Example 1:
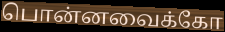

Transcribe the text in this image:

பொன்னவைக்கோ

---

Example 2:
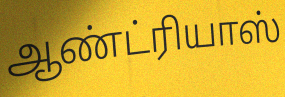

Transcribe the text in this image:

ஆண்ட்ரியாஸ்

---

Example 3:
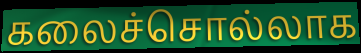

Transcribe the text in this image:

கலைச்சொல்லாக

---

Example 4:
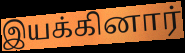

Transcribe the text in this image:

இயக்கினார்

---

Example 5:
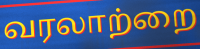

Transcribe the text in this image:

வரலாற்றை